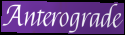
Anterograde